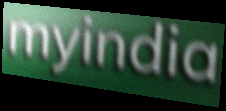
myindia